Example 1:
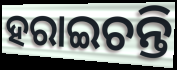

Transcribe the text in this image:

ହରାଇଚନ୍ତି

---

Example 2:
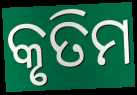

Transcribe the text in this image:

କୃତିମ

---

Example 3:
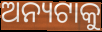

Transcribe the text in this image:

ଅନ୍ୟଟାକୁ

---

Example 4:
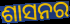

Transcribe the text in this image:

ଶାସନର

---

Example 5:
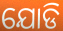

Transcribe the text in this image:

ଯୋଡି